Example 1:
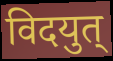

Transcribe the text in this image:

विदयुत्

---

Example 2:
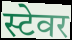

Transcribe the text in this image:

स्टेवर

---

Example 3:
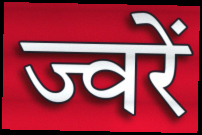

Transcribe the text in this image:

ज्वरें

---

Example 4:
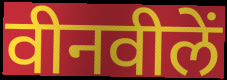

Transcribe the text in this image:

वीनवीलें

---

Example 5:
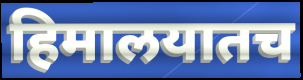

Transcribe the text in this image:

हिमालयातच